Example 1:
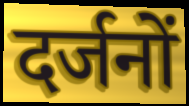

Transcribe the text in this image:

दर्जनों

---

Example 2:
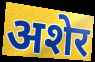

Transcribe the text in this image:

अशेर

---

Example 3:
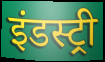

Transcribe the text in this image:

इंडस्ट्री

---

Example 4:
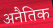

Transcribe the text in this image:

अनैतिक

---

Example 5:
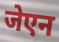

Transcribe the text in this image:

जेएन